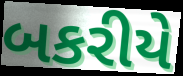
બકરીયે